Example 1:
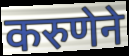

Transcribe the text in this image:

करुणेने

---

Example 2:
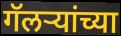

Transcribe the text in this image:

गॅलर्‍यांच्या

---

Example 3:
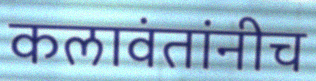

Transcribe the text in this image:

कलावंतांनीच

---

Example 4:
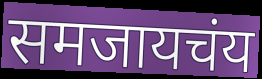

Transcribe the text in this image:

समजायचंय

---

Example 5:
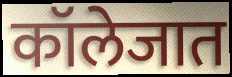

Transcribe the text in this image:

कॉलेजात